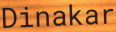
Dinakar